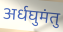
अर्धघुमंतु